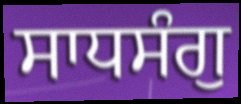
ਸਾਧਸੰਗੁ